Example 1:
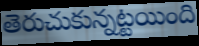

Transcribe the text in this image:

తెరుచుకున్నట్టయింది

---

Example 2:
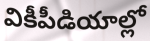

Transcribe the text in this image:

వికీపీడియాల్లో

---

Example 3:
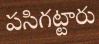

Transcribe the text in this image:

పసిగట్టారు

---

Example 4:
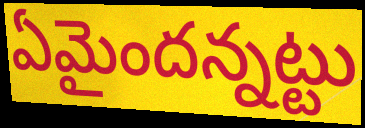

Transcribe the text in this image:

ఏమైందన్నట్టు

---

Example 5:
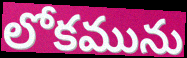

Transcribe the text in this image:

లోకమును